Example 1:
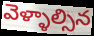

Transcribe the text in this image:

వెళ్ళాల్సిన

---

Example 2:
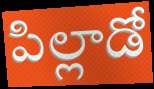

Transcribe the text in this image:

పిల్లాడో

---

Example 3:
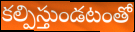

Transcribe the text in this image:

కల్పిస్తుండటంతో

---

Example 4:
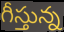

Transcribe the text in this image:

గీస్తున్న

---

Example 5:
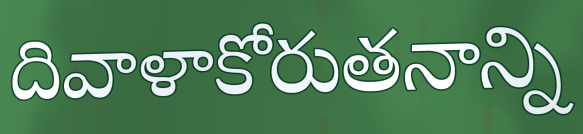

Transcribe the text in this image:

దివాళాకోరుతనాన్ని